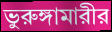
ভুরুঙ্গামারীর